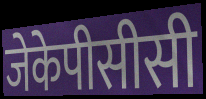
जेकेपीसीसी